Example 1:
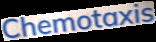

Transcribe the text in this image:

Chemotaxis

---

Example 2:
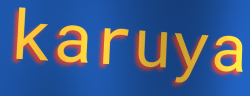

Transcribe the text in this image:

karuya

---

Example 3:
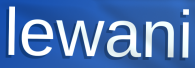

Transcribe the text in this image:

lewani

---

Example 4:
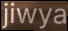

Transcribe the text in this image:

jiwya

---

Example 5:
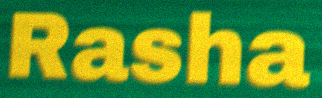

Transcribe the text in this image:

Rasha